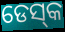
ଡେସ୍‌କ